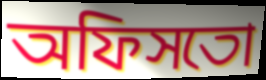
অফিসতো